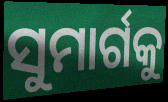
ସୁମାର୍ଗକୁ